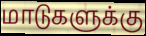
மாடுகளுக்கு